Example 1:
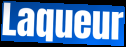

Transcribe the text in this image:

Laqueur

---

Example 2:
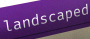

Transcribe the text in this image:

landscaped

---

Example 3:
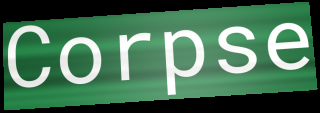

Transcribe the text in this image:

Corpse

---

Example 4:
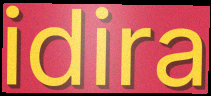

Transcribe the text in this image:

idira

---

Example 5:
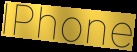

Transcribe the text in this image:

IPhone